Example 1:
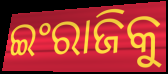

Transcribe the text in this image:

ଇଂରାଜିକୁ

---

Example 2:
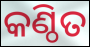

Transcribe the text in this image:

କଣ୍ଠିତ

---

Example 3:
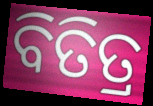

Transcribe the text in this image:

ବିତିତ୍ର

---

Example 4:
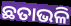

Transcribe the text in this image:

ଛତାଭଳି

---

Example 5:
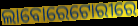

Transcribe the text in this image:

ଲାବୋରେଟୋରୀରେ